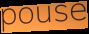
pouse